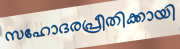
സഹോദരപ്രീതിക്കായി